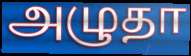
அழுதா